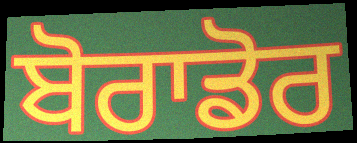
ਬੋਰਾਡੋਰ